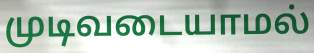
முடிவடையாமல்